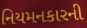
નિયમનકારની